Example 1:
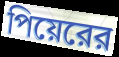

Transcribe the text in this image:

পিয়েরের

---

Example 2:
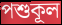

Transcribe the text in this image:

পশুকূল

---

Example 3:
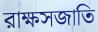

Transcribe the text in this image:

রাক্ষসজাতি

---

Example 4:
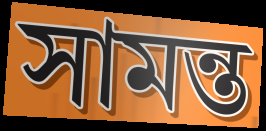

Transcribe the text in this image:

সামন্ত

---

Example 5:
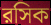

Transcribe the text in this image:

রসিক